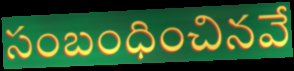
సంబంధించినవే